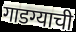
गाडग्याची